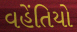
વહેંતિયો